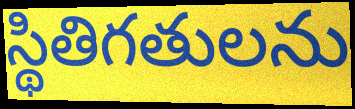
స్థితిగతులను